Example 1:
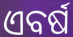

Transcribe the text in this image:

ଏବର୍ଷ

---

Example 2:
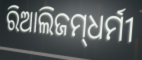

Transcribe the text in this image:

ରିଆଲିଜମ୍‌ଧର୍ମୀ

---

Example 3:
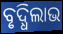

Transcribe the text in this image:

ବୃଦ୍ଧିଲାଭ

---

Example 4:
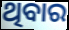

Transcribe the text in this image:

ଥିବାର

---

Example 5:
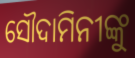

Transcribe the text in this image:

ସୌଦାମିନୀଙ୍କୁ